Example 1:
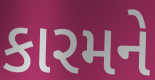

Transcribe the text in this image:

કારમને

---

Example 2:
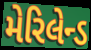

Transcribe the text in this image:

મેરિલેન્ડ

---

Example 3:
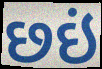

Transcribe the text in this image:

છઇં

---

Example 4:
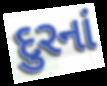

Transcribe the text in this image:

દુરનાં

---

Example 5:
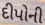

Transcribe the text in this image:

દીપોની